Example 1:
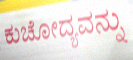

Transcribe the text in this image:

ಕುಚೋದ್ಯವನ್ನು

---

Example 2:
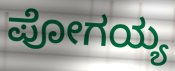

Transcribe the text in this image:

ಪೋಗಯ್ಯ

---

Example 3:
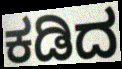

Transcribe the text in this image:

ಕಡಿದ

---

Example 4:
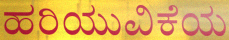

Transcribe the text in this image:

ಹರಿಯುವಿಕೆಯ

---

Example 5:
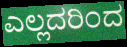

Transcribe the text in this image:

ಎಲ್ಲದರಿಂದ